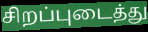
சிறப்புடைத்து